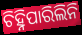
ଚିହ୍ନିପାରିଲିନି